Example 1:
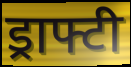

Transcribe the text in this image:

ड्राफ्टी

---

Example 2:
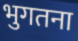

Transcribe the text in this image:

भुगतना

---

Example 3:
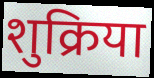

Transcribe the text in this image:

शुक्रिया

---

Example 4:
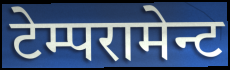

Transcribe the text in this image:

टेम्परामेन्ट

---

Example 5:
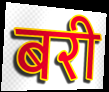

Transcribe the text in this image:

बरी